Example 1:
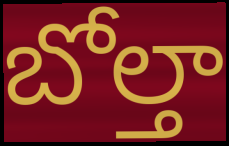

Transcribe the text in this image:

బోల్తా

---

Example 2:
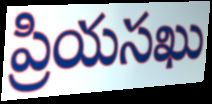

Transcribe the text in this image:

ప్రియసఖు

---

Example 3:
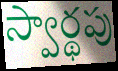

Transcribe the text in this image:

స్వార్థపు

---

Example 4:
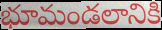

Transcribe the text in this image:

భూమండలానికి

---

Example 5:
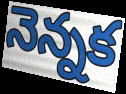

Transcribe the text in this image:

నెన్నక